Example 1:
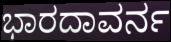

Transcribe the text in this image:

ಭಾರದಾವರ್ನ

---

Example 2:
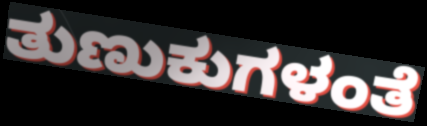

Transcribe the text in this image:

ತುಣುಕುಗಳಂತೆ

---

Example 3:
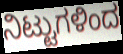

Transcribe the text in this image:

ನಿಟ್ಟುಗಳಿಂದ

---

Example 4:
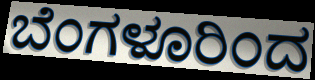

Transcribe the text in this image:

ಬೆಂಗಳೂರಿಂದ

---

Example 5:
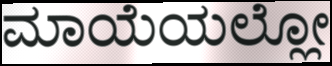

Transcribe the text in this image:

ಮಾಯೆಯಲ್ಲೋ